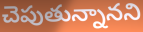
చెపుతున్నానని